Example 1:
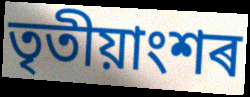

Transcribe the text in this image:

তৃতীয়াংশৰ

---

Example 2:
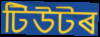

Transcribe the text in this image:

টিউটৰ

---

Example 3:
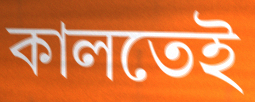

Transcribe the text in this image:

কালতেই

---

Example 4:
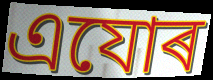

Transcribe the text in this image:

এযোৰ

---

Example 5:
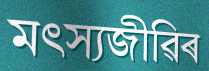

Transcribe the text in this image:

মৎস্যজীৱিৰ